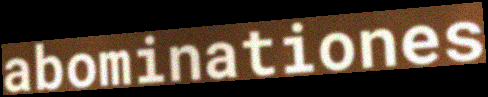
abominationes